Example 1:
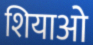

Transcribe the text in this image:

शियाओ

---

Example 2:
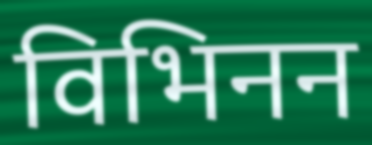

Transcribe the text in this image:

विभिनन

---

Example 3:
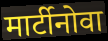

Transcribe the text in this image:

मार्टीनोवा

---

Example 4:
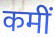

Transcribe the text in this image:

कमीं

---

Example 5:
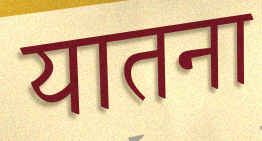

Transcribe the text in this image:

यातना